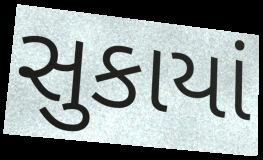
સુકાયાં